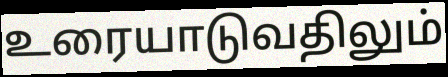
உரையாடுவதிலும்